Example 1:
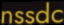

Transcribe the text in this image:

nssdc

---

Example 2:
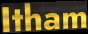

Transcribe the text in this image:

Itham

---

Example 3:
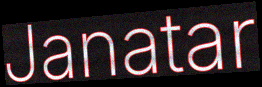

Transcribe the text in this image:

Janatar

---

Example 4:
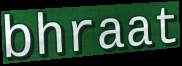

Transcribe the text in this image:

bhraat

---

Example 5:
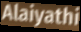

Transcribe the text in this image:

Alaiyathi